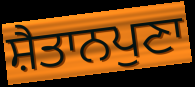
ਸ਼ੈਤਾਨਪੁਣਾ